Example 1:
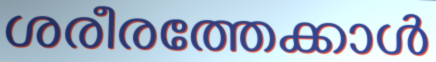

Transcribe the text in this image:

ശരീരത്തേക്കാൾ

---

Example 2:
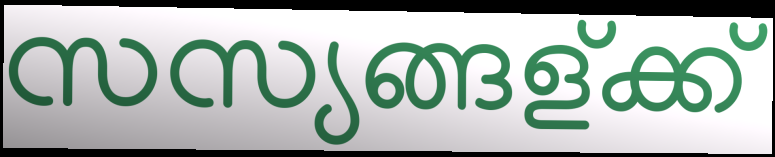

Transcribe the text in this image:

സസ്യങ്ങള്ക്ക്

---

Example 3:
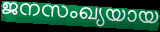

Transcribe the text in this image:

ജനസംഖ്യയായ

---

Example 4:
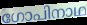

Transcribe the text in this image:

ഗോപിനാഥ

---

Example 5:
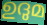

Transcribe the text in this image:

ഉദുമ